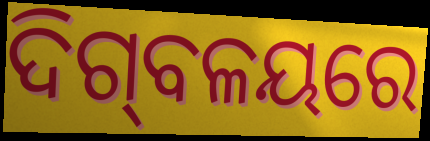
ଦିଗ୍‌ବଳୟରେ